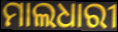
ମାଲଧାରୀ